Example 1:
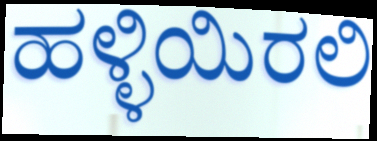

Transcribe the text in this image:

ಹಳ್ಳಿಯಿರಲಿ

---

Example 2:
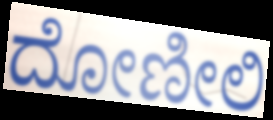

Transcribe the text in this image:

ದೋಣೀಲಿ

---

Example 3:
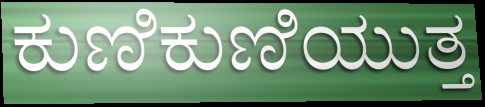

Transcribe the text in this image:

ಕುಣಿಕುಣಿಯುತ್ತ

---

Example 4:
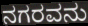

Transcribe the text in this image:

ನಗರವನು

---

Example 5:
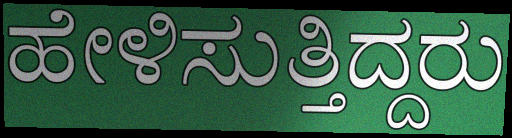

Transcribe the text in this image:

ಹೇಳಿಸುತ್ತಿದ್ದರು